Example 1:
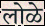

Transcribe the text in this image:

लोळे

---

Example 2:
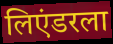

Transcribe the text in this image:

लिएंडरला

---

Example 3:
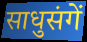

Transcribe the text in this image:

साधुसंगें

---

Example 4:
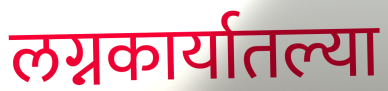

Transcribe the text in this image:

लग्नकार्यातल्या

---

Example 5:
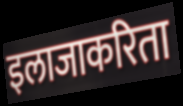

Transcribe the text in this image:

इलाजाकरिता